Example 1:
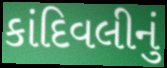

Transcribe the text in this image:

કાંદિવલીનું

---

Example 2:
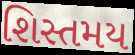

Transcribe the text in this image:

શિસ્તમય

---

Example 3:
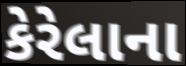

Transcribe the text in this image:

કેરેલાના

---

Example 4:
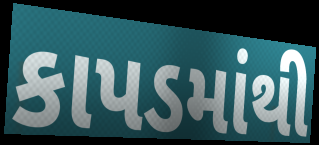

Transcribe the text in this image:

કાપડમાંથી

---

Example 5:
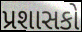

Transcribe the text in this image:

પ્રશાસકો